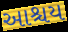
આશ્ચય